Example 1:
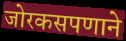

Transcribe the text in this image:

जोरकसपणाने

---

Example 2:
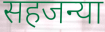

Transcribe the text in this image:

सहजन्या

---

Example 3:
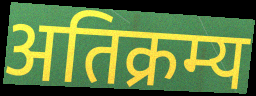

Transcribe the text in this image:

अतिक्रम्य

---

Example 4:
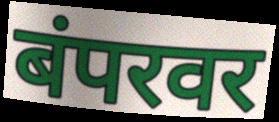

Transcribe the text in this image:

बंपरवर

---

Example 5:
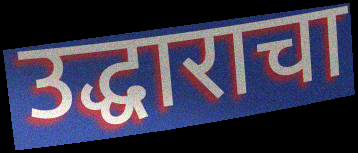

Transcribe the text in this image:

उद्धाराचा